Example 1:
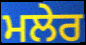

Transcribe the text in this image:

ਮਲੇਰ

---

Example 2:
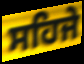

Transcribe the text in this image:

ਸਹਿਜੇ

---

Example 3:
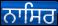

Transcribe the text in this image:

ਨਾਸਿਰ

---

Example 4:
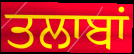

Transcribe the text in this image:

ਤਲਾਬਾਂ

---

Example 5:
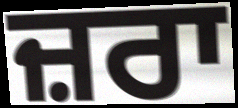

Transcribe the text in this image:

ਜ਼ਰਾ